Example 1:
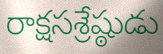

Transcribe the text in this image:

రాక్షసశ్రేష్ఠుడు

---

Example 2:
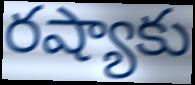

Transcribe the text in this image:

రష్యాకు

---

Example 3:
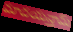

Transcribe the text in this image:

మాదయన్తామ్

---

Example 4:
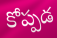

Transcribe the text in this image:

కోప్పడ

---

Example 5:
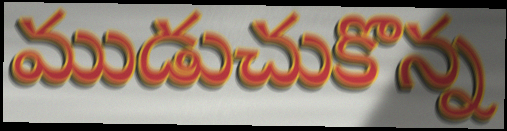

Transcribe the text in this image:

ముడుచుకొన్న